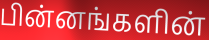
பின்னங்களின்